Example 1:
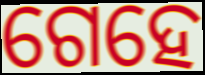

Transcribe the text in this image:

ଗେହେ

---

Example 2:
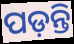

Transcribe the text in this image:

ପଡ଼ନ୍ତି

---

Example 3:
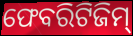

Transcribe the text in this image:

ଫେବରିଟିଜିମ୍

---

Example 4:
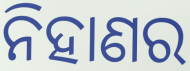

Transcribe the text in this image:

ନିହାଣର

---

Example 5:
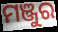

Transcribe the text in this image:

ମଞ୍ଜୁର